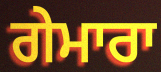
ਗੇਮਾਰਾ